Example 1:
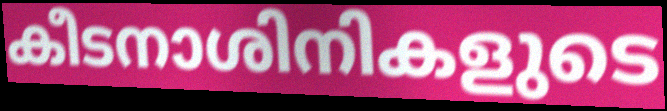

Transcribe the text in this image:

കീടനാശിനികളുടെ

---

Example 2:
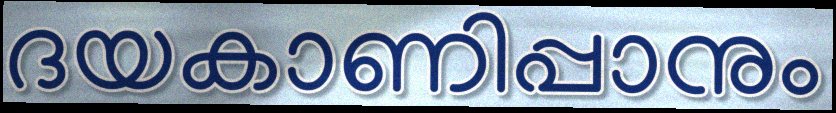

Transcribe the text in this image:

ദയകാണിപ്പാനും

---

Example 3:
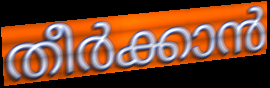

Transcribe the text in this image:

തീർക്കാൻ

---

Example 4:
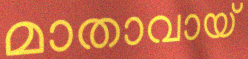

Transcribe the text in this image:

മാതാവായ്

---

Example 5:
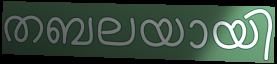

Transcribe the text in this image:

തബലയായി